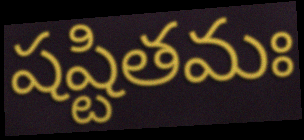
షష్టితమః